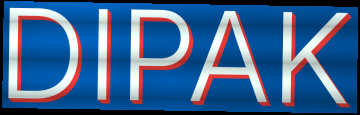
DIPAK